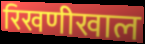
रिखणीखाल